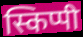
स्किप्पी